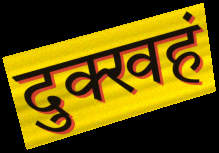
दुक्खहं